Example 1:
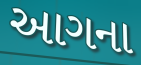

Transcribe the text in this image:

આગના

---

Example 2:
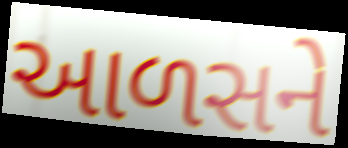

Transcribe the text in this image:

આળસને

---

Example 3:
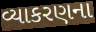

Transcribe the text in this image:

વ્યાકરણના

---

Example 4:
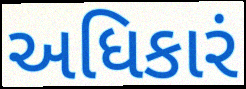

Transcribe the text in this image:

અધિકારં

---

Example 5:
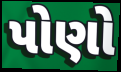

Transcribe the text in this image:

પોણો